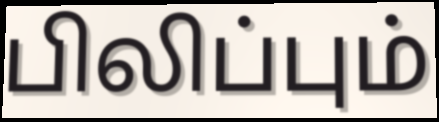
பிலிப்பும்